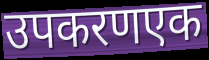
उपकरणएक